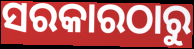
ସରକାରଠାରୁ